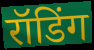
रॉडिंग